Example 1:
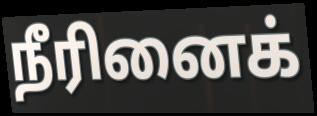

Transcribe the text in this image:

நீரினைக்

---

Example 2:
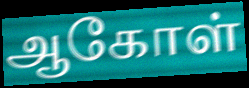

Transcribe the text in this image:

ஆகோள்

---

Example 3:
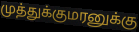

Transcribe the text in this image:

முத்துக்குமரனுக்கு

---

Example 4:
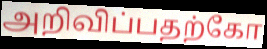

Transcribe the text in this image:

அறிவிப்பதற்கோ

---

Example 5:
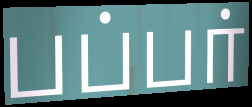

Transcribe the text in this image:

பப்பர்